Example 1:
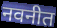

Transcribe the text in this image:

नवनीत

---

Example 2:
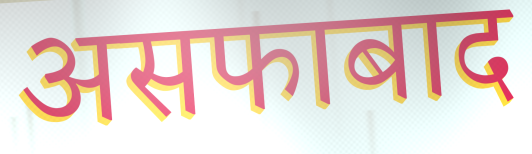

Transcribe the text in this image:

असफाबाद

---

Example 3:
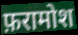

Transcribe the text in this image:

फ़रामोश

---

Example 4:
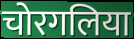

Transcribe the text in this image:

चोरगलिया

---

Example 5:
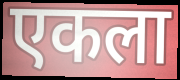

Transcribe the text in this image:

एकला